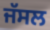
ਜੱਸਲ